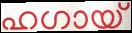
ഹഗായ്